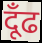
दूँढ